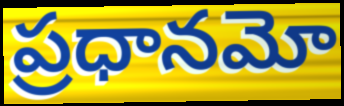
ప్రధానమో